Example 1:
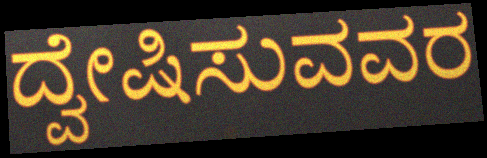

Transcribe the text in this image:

ದ್ವೇಷಿಸುವವರ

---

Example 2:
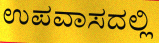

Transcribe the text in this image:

ಉಪವಾಸದಲ್ಲಿ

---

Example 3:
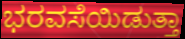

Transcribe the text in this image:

ಭರವಸೆಯಿಡುತ್ತಾ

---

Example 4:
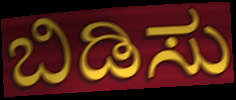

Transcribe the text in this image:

ಬಿಡಿಸು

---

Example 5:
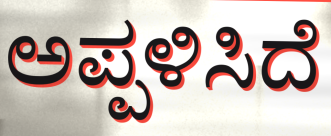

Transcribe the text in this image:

ಅಪ್ಪಳಿಸಿದೆ